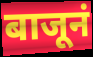
बाजूनं